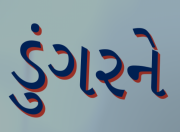
ડુંગરને